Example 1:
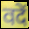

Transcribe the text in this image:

वदें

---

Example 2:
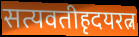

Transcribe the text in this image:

सत्यवतीहृदयरत्न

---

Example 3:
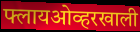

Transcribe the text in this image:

फ्लायओव्हरखाली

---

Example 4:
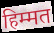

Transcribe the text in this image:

हिम्मत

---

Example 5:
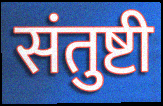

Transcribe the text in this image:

संतुष्टी